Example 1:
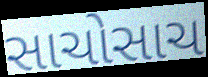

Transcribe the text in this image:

સાચોસાચ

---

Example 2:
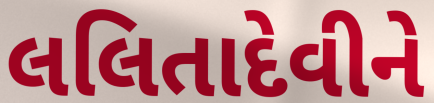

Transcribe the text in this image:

લલિતાદેવીને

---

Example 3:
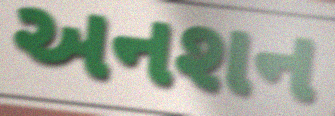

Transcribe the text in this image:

અનશન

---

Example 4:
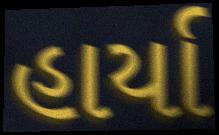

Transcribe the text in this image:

હાર્યા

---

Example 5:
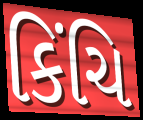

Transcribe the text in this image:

કિંચિ